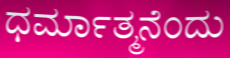
ಧರ್ಮಾತ್ಮನೆಂದು